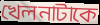
খেলনাটাকে